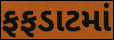
ફફડાટમાં